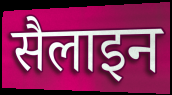
सैलाइन